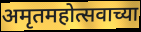
अमृतमहोत्सवाच्या